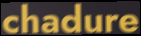
chadure